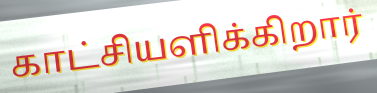
காட்சியளிக்கிறார்